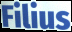
Filius